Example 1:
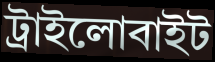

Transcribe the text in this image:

ট্রাইলোবাইট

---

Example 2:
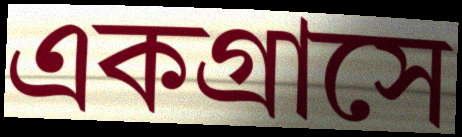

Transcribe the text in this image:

একগ্রাসে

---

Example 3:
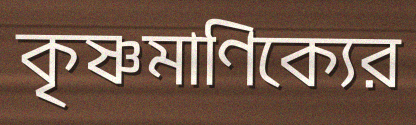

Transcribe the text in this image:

কৃষ্ণমাণিক্যের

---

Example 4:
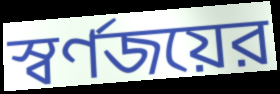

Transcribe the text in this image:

স্বর্ণজয়ের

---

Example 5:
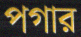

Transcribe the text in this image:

পগার